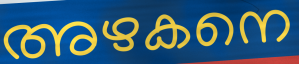
അഴകനെ